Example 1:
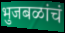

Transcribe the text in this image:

भुजबळांचं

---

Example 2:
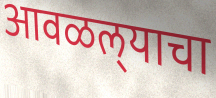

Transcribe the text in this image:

आवळल्याचा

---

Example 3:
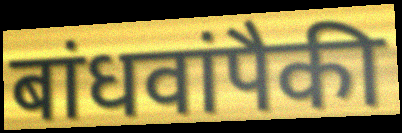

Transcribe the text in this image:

बांधवांपैकी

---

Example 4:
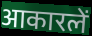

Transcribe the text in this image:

आकारलें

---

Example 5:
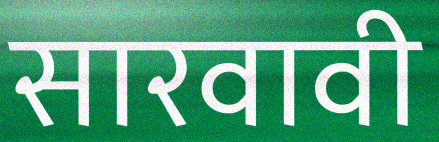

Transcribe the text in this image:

सारवावी